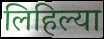
लिहिल्या